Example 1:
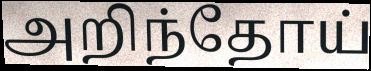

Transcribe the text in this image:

அறிந்தோய்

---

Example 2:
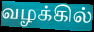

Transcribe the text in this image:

வழக்கில்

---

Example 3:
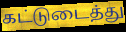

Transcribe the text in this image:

கட்டுடைத்து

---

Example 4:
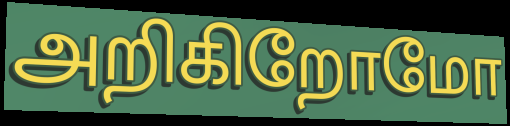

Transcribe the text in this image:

அறிகிறோமோ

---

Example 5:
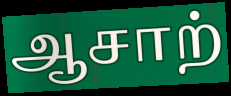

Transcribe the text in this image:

ஆசாற்